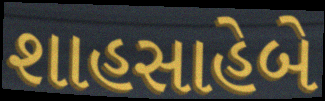
શાહસાહેબે